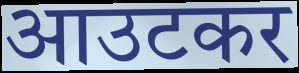
आउटकर